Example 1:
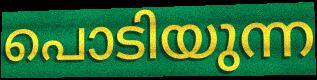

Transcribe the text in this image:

പൊടിയുന്ന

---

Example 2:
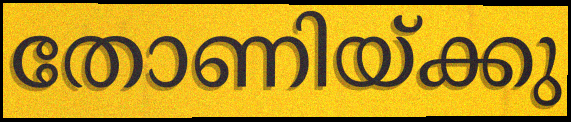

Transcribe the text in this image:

തോണിയ്ക്കു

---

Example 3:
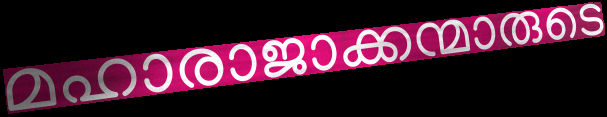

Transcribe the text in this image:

മഹാരാജാക്കന്മാരുടെ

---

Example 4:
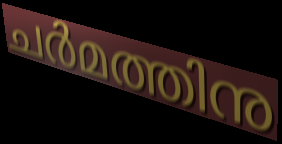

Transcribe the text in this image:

ചർമത്തിനു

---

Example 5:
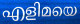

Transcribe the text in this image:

എളിമയെ